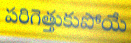
పరిగెత్తుకుపోయే